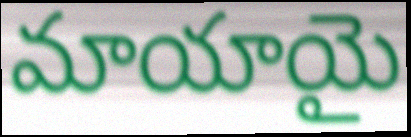
మాయాయై